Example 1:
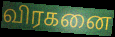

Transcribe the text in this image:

விரகனை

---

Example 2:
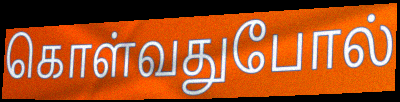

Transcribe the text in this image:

கொள்வதுபோல்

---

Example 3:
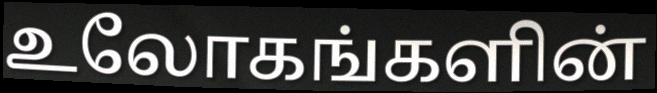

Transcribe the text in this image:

உலோகங்களின்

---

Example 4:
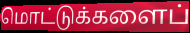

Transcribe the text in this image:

மொட்டுக்களைப்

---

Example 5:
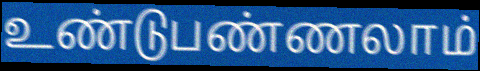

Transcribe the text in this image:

உண்டுபண்ணலாம்